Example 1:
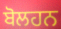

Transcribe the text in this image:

ਬੋਲਹਨ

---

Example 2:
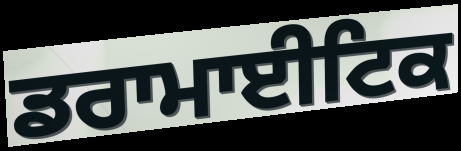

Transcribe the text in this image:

ਡਰਾਮਾਈਟਿਕ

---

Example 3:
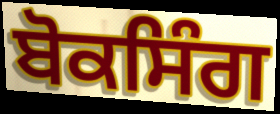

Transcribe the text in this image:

ਬੋਕਸਿੰਗ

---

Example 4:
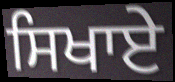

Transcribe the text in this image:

ਸਿਖਾਏੇ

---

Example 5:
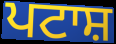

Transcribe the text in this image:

ਪਟਾਸ਼